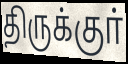
திருக்குர்